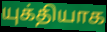
யுக்தியாக